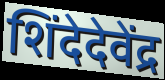
शिंदेदेवेंद्र